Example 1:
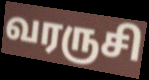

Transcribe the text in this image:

வரருசி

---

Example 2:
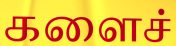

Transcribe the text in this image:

களைச்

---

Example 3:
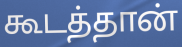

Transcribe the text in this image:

கூடத்தான்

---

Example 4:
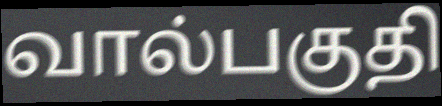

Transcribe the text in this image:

வால்பகுதி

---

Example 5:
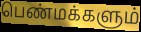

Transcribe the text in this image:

பெண்மக்களும்